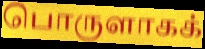
பொருளாகக்